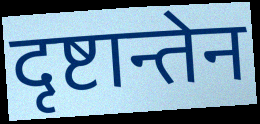
दृष्टान्तेन